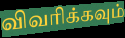
விவரிக்கவும்